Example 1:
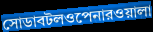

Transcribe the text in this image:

সোডাবটলওপেনারওয়ালা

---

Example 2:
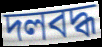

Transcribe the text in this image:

দলবদ্ধ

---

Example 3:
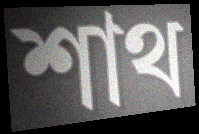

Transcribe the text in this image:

শাথ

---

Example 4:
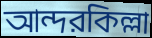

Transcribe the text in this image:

আন্দরকিল্লা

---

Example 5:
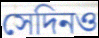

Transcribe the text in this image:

সেদিনও